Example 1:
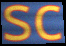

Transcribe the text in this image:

sc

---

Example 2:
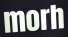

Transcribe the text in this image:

morh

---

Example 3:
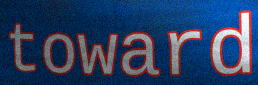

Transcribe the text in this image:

toward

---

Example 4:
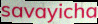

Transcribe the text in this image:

savayicha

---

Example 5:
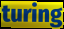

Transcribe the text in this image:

turing